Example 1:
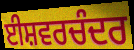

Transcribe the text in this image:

ਈਸ਼ਵਰਚੰਦਰ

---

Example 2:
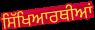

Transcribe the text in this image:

ਸਿੱਖਿਆਰਥੀਆਂ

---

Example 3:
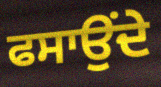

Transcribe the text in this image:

ਫਸਾਉਂਦੇ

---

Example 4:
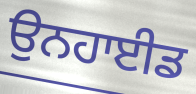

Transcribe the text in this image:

ਉਨਹਾਈਡ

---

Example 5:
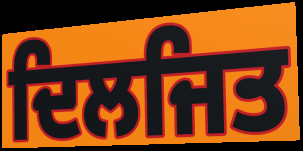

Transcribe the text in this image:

ਦਿਲਜਿਤ